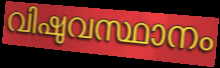
വിഷുവസ്ഥാനം